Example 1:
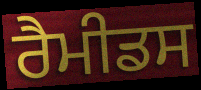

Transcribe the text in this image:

ਰੈਮੀਡਸ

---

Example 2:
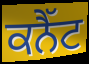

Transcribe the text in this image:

ਕਨੈੱਟ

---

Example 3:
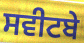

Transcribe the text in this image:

ਸਵੀਟਬੇ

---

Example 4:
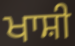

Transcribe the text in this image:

ਖਾਸ਼ੀ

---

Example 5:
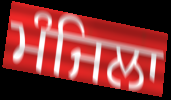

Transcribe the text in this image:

ਮੰਜਿਲਾ